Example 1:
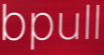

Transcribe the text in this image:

bpull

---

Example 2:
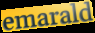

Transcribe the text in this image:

emarald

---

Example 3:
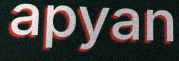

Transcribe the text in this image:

apyan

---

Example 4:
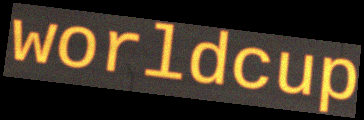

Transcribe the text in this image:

worldcup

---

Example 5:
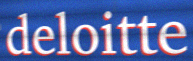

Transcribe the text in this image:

deloitte